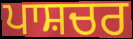
ਪਾਸ਼ਚਰ